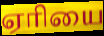
ஏரியை